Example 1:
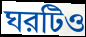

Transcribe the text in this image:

ঘরটিও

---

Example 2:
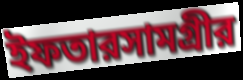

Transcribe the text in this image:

ইফতারসামগ্রীর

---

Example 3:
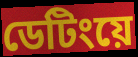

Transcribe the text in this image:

ডেটিংয়ে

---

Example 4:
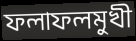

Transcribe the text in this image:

ফলাফলমুখী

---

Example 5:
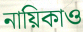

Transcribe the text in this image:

নায়িকাও